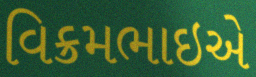
વિક્રમભાઇએ